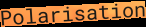
Polarisation